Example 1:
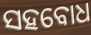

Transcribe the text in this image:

ସହବୋଧ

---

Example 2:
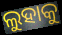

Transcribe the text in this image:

ଲୁହାକୁ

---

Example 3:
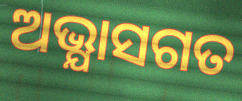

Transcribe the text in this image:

ଅଭ୍ଯାସଗତ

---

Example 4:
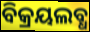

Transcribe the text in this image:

ବିକ୍ରୟଲବ୍ଧ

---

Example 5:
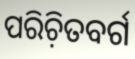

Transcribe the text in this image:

ପରିଚ଼ିତବର୍ଗ